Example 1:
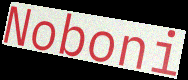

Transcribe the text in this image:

Noboni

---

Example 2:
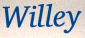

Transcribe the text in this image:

Willey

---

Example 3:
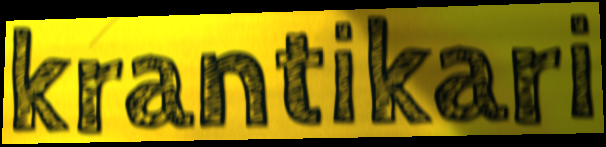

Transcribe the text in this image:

krantikari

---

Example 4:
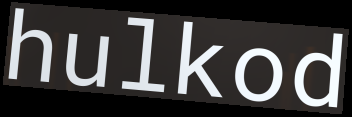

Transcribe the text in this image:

hulkod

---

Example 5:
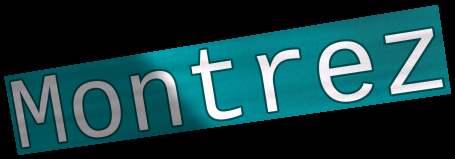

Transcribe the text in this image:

Montrez